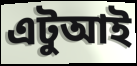
এটুআই